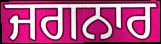
ਜਗਨਾਰ